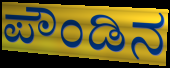
ಪೌಂಡಿನ